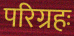
परिग्रहः